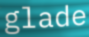
glade